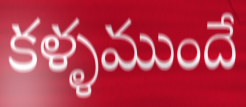
కళ్ళముందే